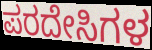
ಪರದೇಸಿಗಳ